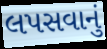
લપસવાનું